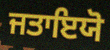
ਜਤਾਇਯੋ